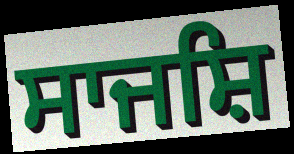
ਸਾਜਸ਼ਿ